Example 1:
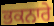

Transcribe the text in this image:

ਭਕਨਾਰੇ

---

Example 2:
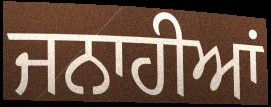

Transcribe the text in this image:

ਜਨਾਹੀਆਂ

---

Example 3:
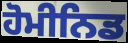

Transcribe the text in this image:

ਹੋਮੀਨਿਡ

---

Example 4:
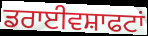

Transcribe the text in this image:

ਡਰਾਈਵਸ਼ਾਫਟਾਂ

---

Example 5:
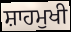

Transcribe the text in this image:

ਸ਼ਾਹਮੁਖੀ